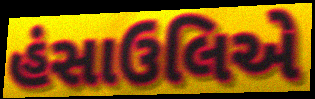
હંસાઉલિએ